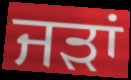
ਜੜਾਂ